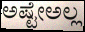
ಅಷ್ಟೇಅಲ್ಲ